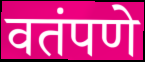
वतंपणे